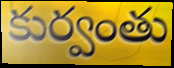
కుర్వంతు